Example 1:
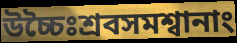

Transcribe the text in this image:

উচ্চৈঃশ্রবসমশ্বানাং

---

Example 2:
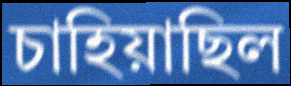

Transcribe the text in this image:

চাহিয়াছিল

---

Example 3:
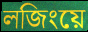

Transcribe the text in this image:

লজিংয়ে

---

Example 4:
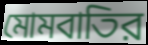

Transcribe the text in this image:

মোমবাতির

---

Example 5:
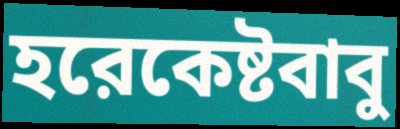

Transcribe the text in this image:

হরেকেষ্টবাবু